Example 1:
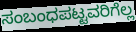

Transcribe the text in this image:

ಸಂಬಂಧಪಟ್ಟವರಿಗೆಲ್ಲ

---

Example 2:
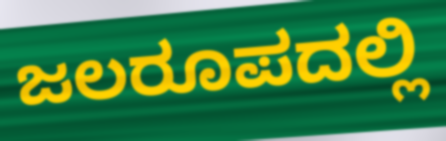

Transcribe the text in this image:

ಜಲರೂಪದಲ್ಲಿ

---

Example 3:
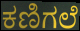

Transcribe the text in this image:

ಕಣಿಗಲೆ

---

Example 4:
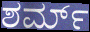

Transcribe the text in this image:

ಶರ್ಮ್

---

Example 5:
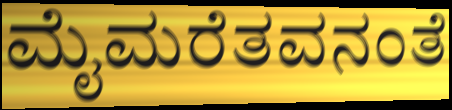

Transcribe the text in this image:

ಮೈಮರೆತವನಂತೆ